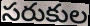
సరుకుల